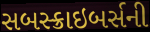
સબસ્ક્રાઇબર્સની